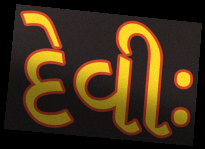
દેવીઃ